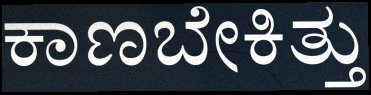
ಕಾಣಬೇಕಿತ್ತು